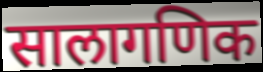
सालागणिक